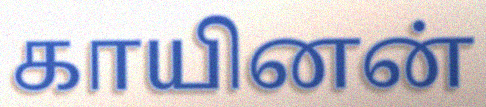
காயினன்